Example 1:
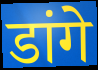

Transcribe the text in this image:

डांगे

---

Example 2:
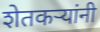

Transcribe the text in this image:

शेतकऱ्यांनी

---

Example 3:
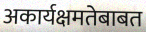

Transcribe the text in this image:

अकार्यक्षमतेबाबत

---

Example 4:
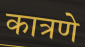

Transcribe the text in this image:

कात्रणे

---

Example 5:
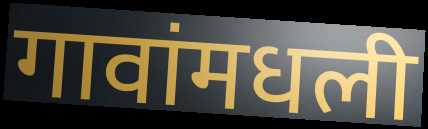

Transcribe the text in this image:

गावांमधली